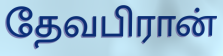
தேவபிரான்